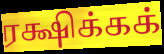
ரக்ஷிக்கக்